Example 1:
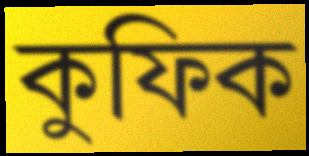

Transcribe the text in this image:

কুফিক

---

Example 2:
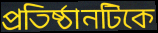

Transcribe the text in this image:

প্রতিষ্ঠানটিকে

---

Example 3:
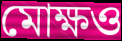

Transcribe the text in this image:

মোক্ষও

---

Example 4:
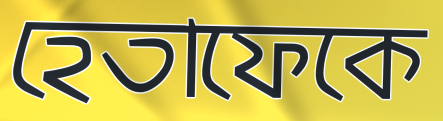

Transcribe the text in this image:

হেতাফেকে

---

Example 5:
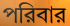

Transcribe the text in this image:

পরিবার